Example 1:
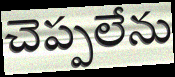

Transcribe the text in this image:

చెప్పలేను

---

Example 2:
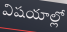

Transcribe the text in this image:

విషయాల్లో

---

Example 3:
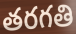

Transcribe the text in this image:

తరగతి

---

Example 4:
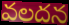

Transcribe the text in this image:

వలదన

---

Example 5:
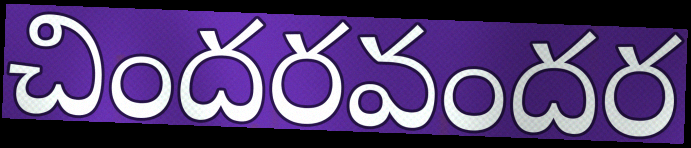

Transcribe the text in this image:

చిందరవందర